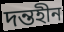
দন্তহীন